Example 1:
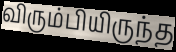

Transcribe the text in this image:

விரும்பியிருந்த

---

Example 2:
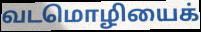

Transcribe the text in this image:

வடமொழியைக்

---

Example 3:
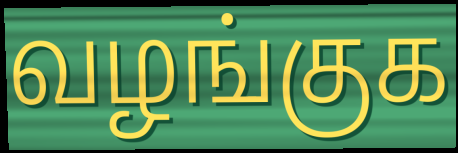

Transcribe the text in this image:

வழங்குக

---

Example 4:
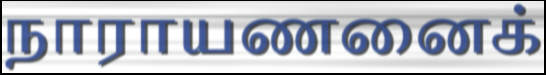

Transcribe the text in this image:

நாராயணனைக்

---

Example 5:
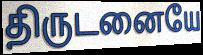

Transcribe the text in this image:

திருடனையே